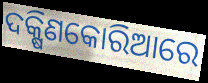
ଦକ୍ଷିଣକୋରିଆରେ